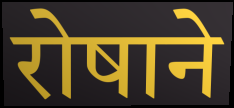
रोषाने